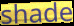
shade